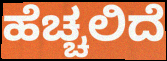
ಹೆಚ್ಚಲಿದೆ